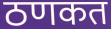
ठणकत